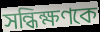
সন্ধিক্ষণকে